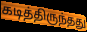
கடித்திருந்தது